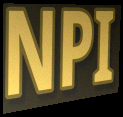
NPI